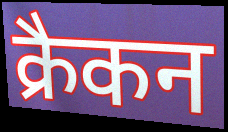
क्रैकन